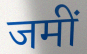
जमीं